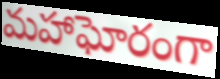
మహాఘోరంగా